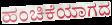
ಹಂಚಿಕೆಯಾಗದ